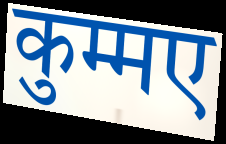
कुम्मए